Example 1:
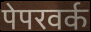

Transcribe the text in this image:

पेपरवर्क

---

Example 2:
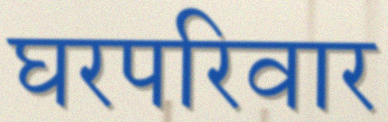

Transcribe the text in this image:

घरपरिवार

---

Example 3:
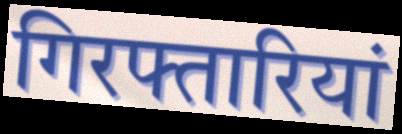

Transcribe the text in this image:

गिरफ्तारियां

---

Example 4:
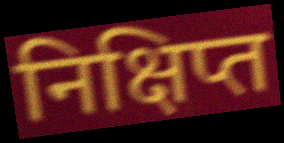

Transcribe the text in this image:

निक्षिप्त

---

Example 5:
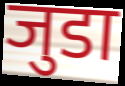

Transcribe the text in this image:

जुडा